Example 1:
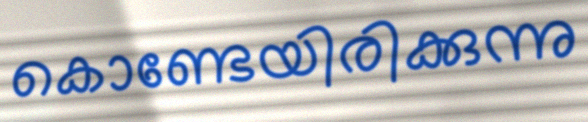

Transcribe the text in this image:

കൊണ്ടേയിരിക്കുന്നു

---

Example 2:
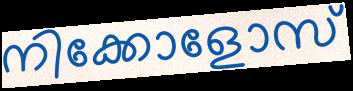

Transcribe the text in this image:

നിക്കോളോസ്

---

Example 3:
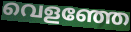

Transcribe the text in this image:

വെളഞ്ഞേ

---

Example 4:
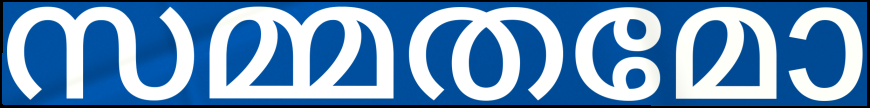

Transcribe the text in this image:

സമ്മതമോ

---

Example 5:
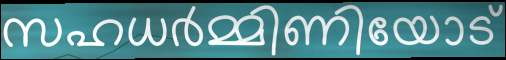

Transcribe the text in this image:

സഹധർമ്മിണിയോട്